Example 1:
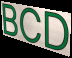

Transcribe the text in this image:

BCD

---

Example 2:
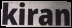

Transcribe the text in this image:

kiran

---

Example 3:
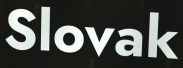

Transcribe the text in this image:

Slovak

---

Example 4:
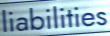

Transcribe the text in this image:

liabilities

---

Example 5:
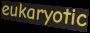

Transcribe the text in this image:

eukaryotic